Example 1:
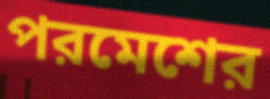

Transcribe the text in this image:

পরমেশের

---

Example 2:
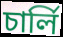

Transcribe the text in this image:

চার্লি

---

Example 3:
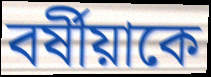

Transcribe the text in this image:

বর্ষীয়াকে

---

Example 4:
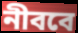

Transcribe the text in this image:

নীববে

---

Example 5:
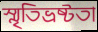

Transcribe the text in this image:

স্মৃতিভ্রষ্টতা